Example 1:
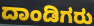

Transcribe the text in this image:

ದಾಂಡಿಗರು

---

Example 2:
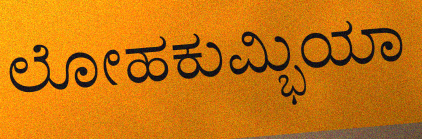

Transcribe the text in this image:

ಲೋಹಕುಮ್ಭಿಯಾ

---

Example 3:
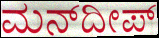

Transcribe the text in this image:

ಮನ್‍ದೀಪ್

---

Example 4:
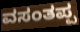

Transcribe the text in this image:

ವಸಂತಪ್ಪ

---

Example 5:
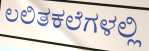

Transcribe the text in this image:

ಲಲಿತಕಲೆಗಳಲ್ಲಿ